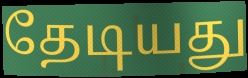
தேடியது